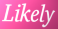
Likely